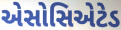
એસોસિએટેડ